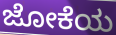
ಜೋಕೆಯ